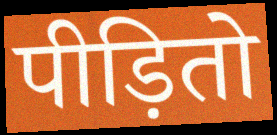
पीड़ितो